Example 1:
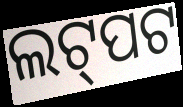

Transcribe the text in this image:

ଲଟ୍‌ପଟ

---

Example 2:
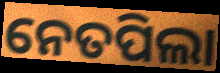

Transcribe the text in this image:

ନେତପିଲା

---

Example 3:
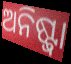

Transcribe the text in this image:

ଅନିଷ୍ଟ୍ୱା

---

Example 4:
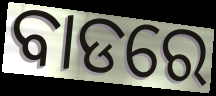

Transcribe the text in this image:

ବାଡରେ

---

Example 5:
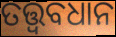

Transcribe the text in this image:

ତତ୍ତ୍ୱବଧାନ